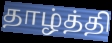
தாழ்த்தி